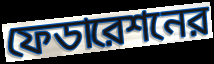
ফেডারেশনের